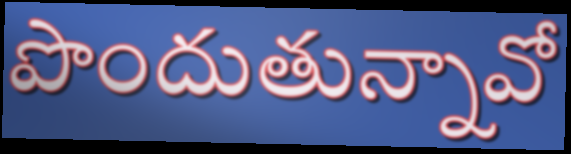
పొందుతున్నావో